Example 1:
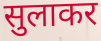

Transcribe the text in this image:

सुलाकर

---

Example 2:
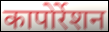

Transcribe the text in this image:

कापोर्रेशन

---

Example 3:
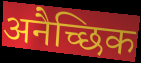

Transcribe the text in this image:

अनैच्छिक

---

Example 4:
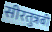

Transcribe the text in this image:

सीरतुन्नबी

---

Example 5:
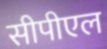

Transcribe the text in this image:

सीपीएल